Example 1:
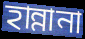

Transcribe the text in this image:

হান্নানা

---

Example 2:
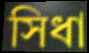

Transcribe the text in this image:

সিধা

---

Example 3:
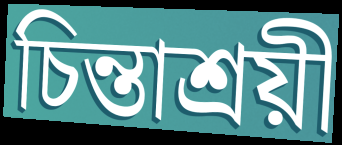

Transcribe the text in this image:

চিন্তাশ্রয়ী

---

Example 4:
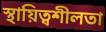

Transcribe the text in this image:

স্থায়িত্বশীলতা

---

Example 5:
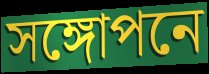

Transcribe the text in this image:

সঙ্গোপনে